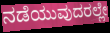
ನಡೆಯುವುದರಲ್ಲೇ